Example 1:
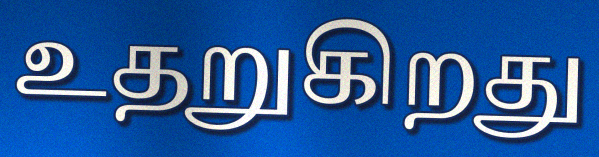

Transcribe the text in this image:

உதறுகிறது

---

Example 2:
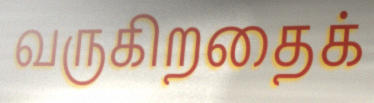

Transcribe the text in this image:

வருகிறதைக்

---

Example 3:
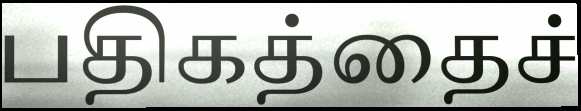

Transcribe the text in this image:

பதிகத்தைச்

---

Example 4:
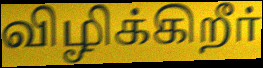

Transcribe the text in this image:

விழிக்கிறீர்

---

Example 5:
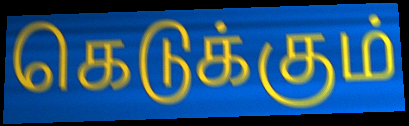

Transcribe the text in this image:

கெடுக்கும்